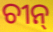
ଚୀନ୍